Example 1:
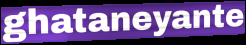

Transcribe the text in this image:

ghataneyante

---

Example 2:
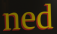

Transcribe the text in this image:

ned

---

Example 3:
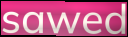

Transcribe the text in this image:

sawed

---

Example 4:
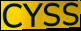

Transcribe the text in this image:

CYSS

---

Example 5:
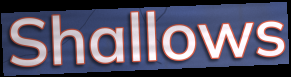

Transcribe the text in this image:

Shallows